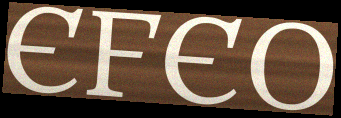
EFEO